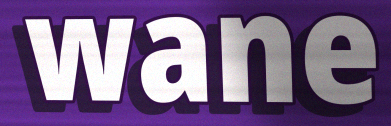
wane